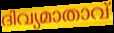
ദിവ്യമാതാവ്